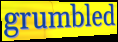
grumbled